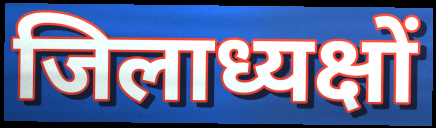
जिलाध्यक्षों